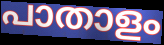
പാതാളം